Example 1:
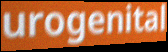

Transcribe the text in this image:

urogenital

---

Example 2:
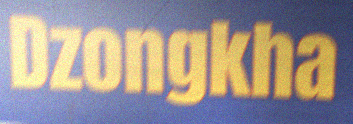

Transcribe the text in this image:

Dzongkha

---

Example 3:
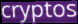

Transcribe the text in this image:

cryptos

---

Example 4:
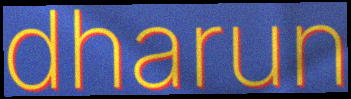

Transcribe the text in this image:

dharun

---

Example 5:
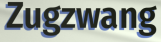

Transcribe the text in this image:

Zugzwang